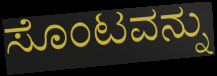
ಸೊಂಟವನ್ನು